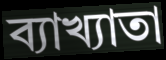
ব্যাখ্যাতা